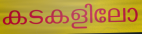
കടകളിലോ